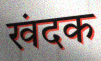
खंदक